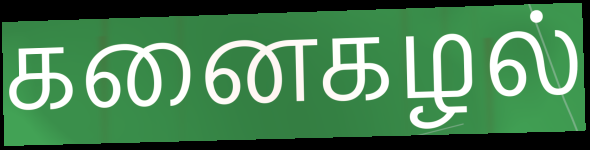
கனைகழல்